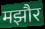
मझौर